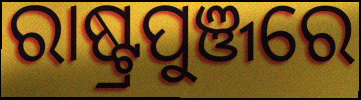
ରାଷ୍ଟ୍ରପୁଞ୍ଜରେ